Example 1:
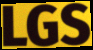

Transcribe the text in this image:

LGS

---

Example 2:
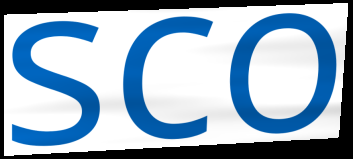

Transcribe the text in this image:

sco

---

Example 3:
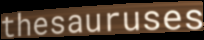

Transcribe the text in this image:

thesauruses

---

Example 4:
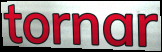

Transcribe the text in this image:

tornar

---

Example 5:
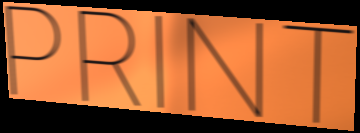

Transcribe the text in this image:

PRINT